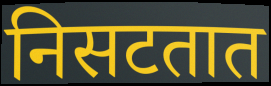
निसटतात